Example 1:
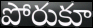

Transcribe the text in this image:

పోరుకూ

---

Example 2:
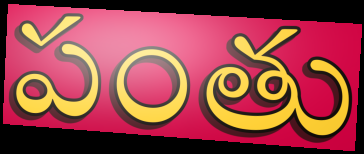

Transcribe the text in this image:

పంతు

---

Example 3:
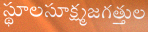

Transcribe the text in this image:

స్థూలసూక్ష్మజగత్తుల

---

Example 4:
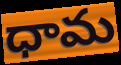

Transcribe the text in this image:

ధామ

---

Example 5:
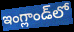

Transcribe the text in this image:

ఇంగ్లాండ్‌లో